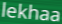
lekhaa